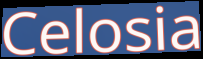
Celosia